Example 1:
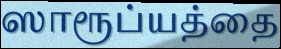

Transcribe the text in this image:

ஸாரூப்யத்தை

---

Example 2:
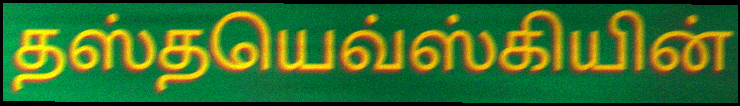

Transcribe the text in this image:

தஸ்தயெவ்ஸ்கியின்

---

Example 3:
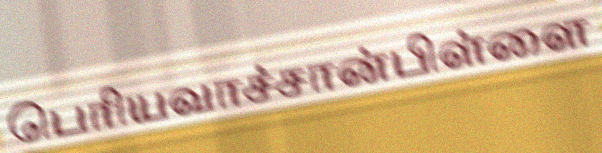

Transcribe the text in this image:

பெரியவாச்சான்பிள்ளை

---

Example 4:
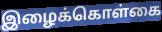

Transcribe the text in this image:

இழைக்கொள்கை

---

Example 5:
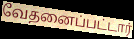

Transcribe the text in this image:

வேதனைப்பட்டார்